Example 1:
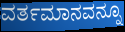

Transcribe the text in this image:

ವರ್ತಮಾನವನ್ನೂ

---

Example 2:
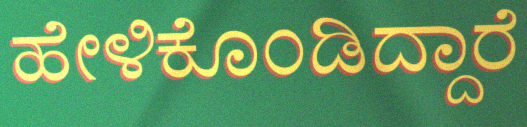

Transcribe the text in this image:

ಹೇಳಿಕೊಂಡಿದ್ದಾರೆ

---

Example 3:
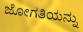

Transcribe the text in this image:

ಜೋಗತಿಯನ್ನು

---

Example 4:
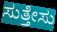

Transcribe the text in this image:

ಸುತ್ತೇಸು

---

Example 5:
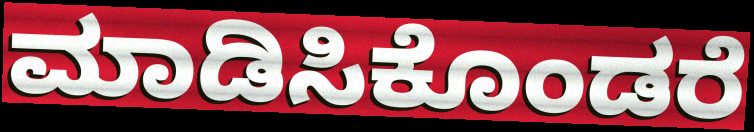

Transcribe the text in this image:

ಮಾಡಿಸಿಕೊಂಡರೆ